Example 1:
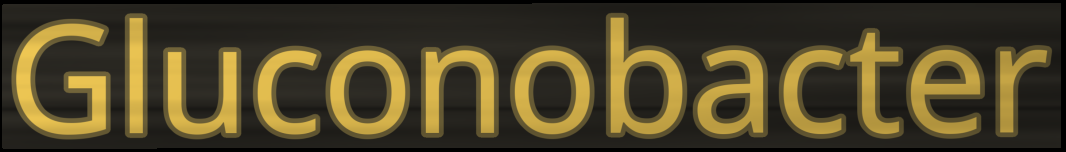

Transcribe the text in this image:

Gluconobacter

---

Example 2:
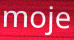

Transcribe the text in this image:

moje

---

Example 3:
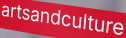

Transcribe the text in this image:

artsandculture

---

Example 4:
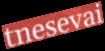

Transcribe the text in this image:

tnesevai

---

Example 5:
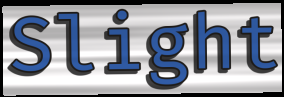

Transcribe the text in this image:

Slight